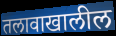
तलावाखालील